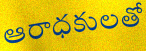
ఆరాధకులతో